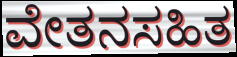
ವೇತನಸಹಿತ